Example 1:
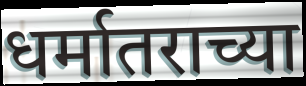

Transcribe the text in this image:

धर्मातराच्या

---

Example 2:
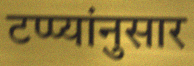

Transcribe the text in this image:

टप्प्यांनुसार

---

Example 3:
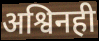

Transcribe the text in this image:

अश्विनही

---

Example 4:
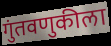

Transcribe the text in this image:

गुंतवणुकीला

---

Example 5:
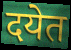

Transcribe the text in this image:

दयेत